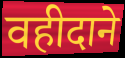
वहीदाने